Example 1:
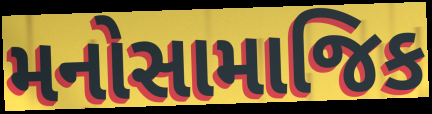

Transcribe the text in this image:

મનોસામાજિક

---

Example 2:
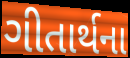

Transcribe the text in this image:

ગીતાર્થના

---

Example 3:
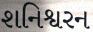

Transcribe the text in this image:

શનિશ્વરન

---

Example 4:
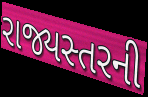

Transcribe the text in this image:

રાજ્યસ્તરની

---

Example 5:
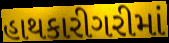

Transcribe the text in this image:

હાથકારીગરીમાં